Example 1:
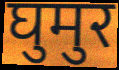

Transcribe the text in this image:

घुमुर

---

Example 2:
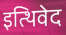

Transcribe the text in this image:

इत्थिवेद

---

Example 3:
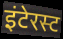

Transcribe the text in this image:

इंटेरस्ट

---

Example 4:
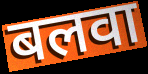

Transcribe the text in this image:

बलवा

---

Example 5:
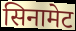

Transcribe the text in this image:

सिनामेट